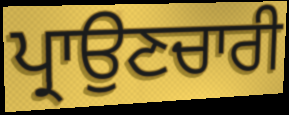
ਪ੍ਰਾਉਣਚਾਰੀ